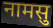
नामसु